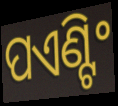
ପଏଣ୍ଟିଂ